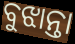
ବୁଝାନ୍ତା